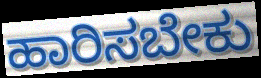
ಹಾರಿಸಬೇಕು